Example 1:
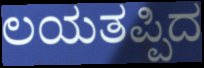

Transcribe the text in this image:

ಲಯತಪ್ಪಿದ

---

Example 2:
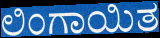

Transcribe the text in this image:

ಲಿಂಗಾಯಿತ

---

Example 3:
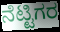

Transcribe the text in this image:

ನೆಟ್ಟಿಗರ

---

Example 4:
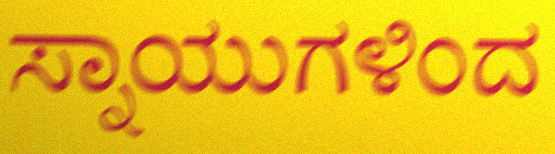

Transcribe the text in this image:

ಸ್ನಾಯುಗಳಿಂದ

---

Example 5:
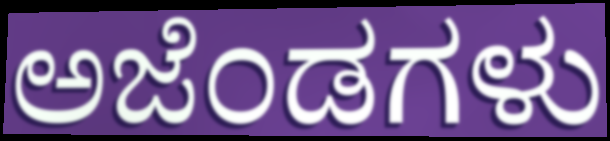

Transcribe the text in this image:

ಅಜೆಂಡಗಳು